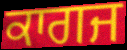
ਕਾਗਜ